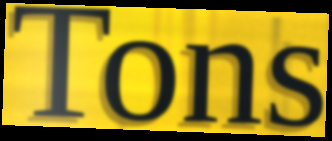
Tons